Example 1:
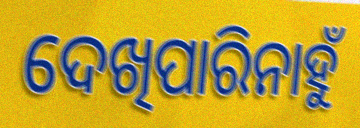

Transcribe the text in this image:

ଦେଖିପାରିନାହୁଁ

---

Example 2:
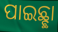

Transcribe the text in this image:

ପାଇଛ୍ଛା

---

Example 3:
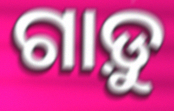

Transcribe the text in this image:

ଗାଡ଼ୁ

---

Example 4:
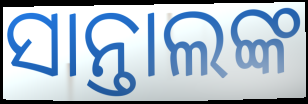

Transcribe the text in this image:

ସାନ୍ତାଲଙ୍କ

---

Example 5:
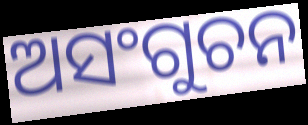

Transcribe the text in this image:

ଅସଂଗୁଚନ